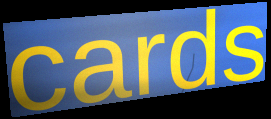
cards